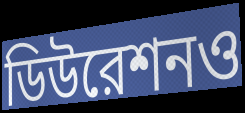
ডিউরেশনও